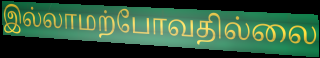
இல்லாமற்போவதில்லை